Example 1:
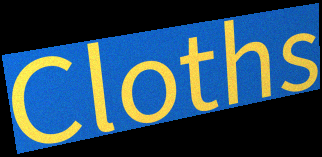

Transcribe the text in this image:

Cloths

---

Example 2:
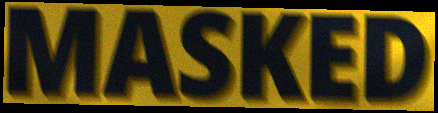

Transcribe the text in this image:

MASKED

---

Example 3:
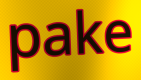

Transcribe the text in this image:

pake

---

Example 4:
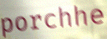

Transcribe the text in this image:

porchhe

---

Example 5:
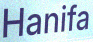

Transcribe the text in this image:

Hanifa